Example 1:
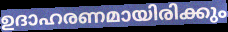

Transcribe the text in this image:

ഉദാഹരണമായിരിക്കും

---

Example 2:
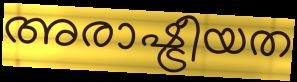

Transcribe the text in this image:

അരാഷ്ട്രീയത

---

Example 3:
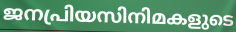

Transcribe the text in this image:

ജനപ്രിയസിനിമകളുടെ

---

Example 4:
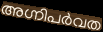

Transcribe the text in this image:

അഗ്നിപർവത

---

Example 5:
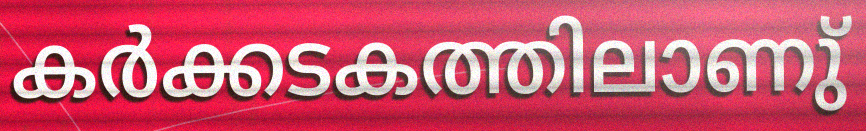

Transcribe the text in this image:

കർക്കടകത്തിലാണു്